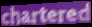
chartered